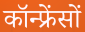
कॉन्फ्रेंसों